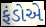
ફંડોએ